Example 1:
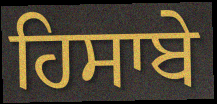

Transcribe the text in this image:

ਹਿਸਾਬੇ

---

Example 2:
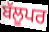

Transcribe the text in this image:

ਬੱਲੂਪਰ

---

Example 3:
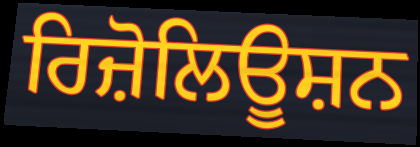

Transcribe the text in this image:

ਰਿਜ਼ੋਲਿਊਸ਼ਨ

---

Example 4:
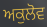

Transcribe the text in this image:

ਅਕੁਲੋਵ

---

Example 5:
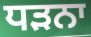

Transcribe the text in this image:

ਧੜਨਾ